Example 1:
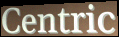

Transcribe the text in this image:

Centric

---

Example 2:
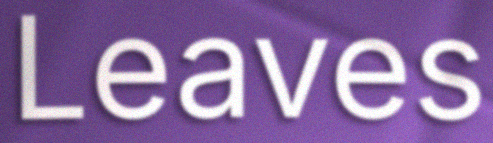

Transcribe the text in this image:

Leaves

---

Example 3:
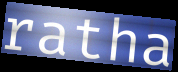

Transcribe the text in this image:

ratha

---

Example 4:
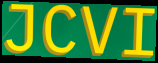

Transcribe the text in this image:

JCVI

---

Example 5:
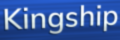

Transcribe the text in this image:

Kingship